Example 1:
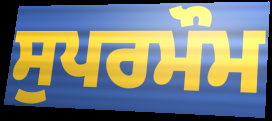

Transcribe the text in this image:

ਸੁਪਰਮੌਮ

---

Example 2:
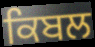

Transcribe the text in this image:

ਕਿਬਲ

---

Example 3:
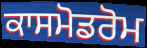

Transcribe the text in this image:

ਕਾਸਮੋਡਰੋਮ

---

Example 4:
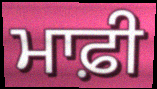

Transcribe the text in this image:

ਮਾਫ਼ੀ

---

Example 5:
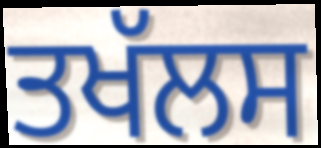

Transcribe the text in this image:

ਤਖੱਲਸ